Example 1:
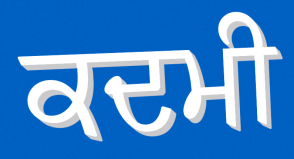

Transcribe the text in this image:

ਕਦਮੀ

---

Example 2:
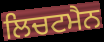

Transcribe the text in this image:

ਲਿਚਟਮੈਨ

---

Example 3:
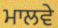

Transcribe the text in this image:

ਮਾਲਵੇ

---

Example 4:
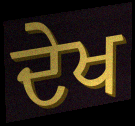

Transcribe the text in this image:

ਦੇਖ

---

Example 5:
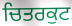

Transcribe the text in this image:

ਚਿਤਰਕੁਟ